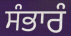
ਸੰਭਾਰੰ